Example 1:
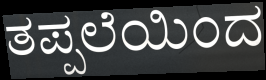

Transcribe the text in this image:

ತಪ್ಪಲೆಯಿಂದ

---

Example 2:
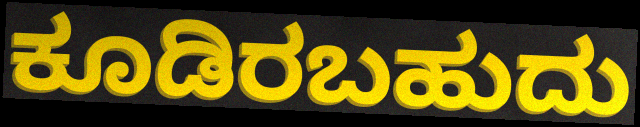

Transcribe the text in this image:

ಕೂಡಿರಬಹುದು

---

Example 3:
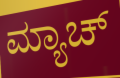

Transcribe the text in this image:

ಮ್ಯಾಚ್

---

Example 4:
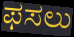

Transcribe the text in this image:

ಫಸಲು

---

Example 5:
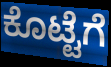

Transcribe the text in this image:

ಕೊಟ್ಟೆಗೆ